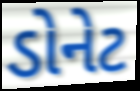
ડોનેટ